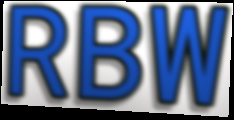
RBW